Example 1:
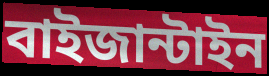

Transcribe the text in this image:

বাইজান্টাইন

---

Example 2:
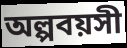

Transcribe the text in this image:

অল্পবয়সী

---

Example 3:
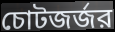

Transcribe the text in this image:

চোটজর্জর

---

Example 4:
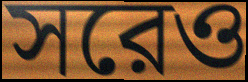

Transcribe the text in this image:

সরেও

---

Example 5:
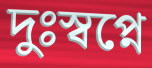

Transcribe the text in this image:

দুঃস্বপ্নে